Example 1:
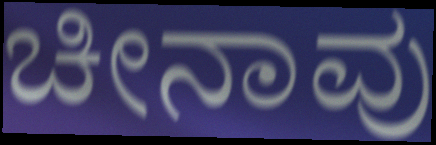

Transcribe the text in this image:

ಚೀನಾವು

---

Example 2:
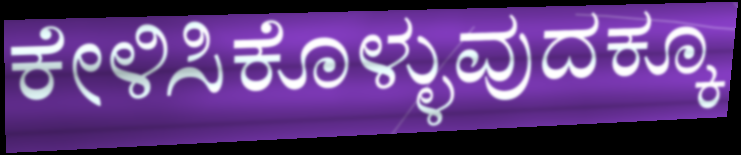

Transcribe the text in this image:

ಕೇಳಿಸಿಕೊಳ್ಳುವುದಕ್ಕೂ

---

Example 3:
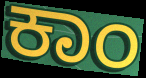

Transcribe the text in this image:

ಕಾಂ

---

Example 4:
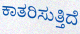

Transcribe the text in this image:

ಕಾತರಿಸುತ್ತಿದೆ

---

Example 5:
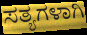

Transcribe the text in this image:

ಸತ್ಯಗಳಾಗಿ